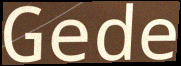
Gede